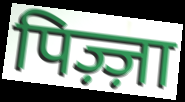
पिज़्ज़ा